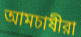
আমচাষীরা